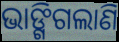
ଭାଙ୍ଗିଗଲାଣି